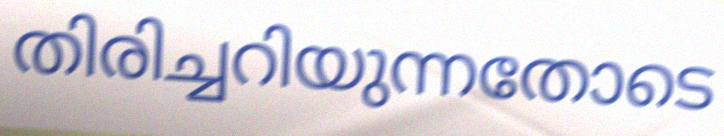
തിരിച്ചറിയുന്നതോടെ